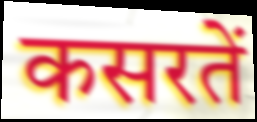
कसरतें